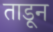
ताडून